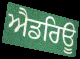
ਐਡਰਿਊ